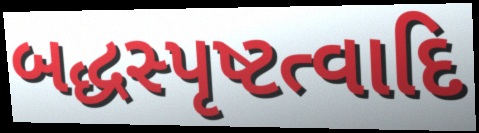
બદ્ધસ્પૃષ્ટત્વાદિ